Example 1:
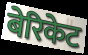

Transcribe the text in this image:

बेरिकेट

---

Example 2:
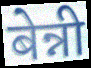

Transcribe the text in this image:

बेन्नी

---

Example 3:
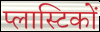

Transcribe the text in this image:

प्लास्टिकों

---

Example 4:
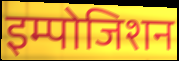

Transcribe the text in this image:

इम्पोजिशन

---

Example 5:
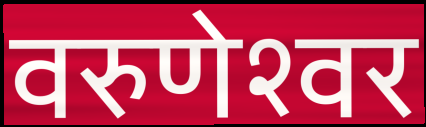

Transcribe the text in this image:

वरुणेश्वर